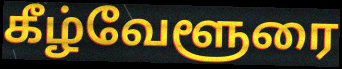
கீழ்வேளூரை